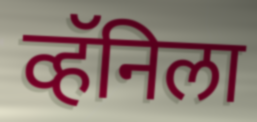
व्हॅनिला